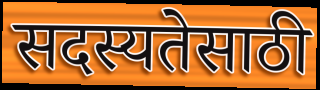
सदस्यतेसाठी